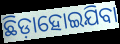
ଛିଡ଼ାହୋଇଯିବା